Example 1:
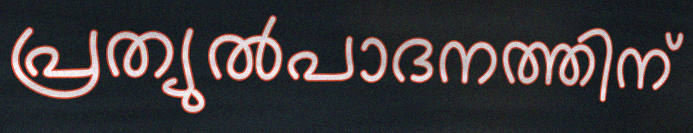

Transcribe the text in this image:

പ്രത്യുൽപാദനത്തിന്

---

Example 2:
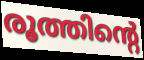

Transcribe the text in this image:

രൂത്തിന്റെ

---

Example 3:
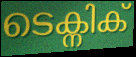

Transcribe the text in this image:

ടെക്നിക്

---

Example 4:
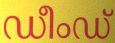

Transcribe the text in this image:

ഡീംഡ്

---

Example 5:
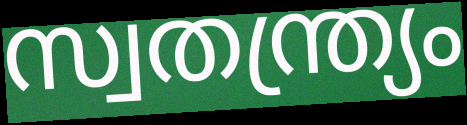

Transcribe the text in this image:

സ്വതന്ത്ര്യം